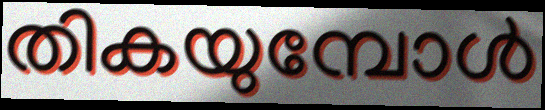
തികയുമ്പോൾ